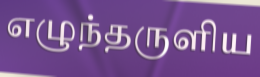
எழுந்தருளிய